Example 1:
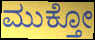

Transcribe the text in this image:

ಮುಕ್ತೋ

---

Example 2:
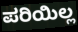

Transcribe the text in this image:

ಪರಿಯಿಲ್ಲ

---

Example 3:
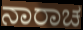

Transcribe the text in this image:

ನಾರಾಚ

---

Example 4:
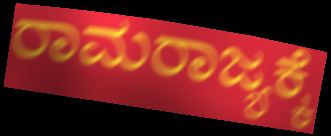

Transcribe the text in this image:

ರಾಮರಾಜ್ಯಕ್ಕೆ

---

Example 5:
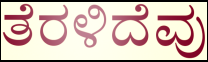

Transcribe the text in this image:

ತೆರಳಿದೆವು